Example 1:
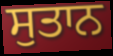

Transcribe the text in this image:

ਸੁਤਾਨ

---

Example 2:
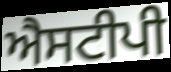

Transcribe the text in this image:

ਐਸਟੀਪੀ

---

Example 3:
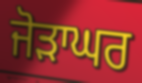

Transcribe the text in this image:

ਜੋੜਾਘਰ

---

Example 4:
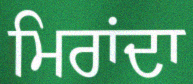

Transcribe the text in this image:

ਮਿਰਾਂਦਾ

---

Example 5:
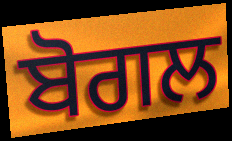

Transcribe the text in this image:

ਬੋਗਲ